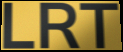
LRT